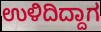
ಉಳಿದಿದ್ದಾಗ